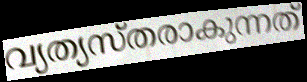
വ്യത്യസ്തരാകുന്നത്